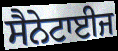
ਸੈਨੇਟਾਈਜ